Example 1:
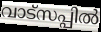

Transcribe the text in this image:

വാട്സപ്പിൽ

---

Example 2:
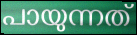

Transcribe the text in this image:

പായുന്നത്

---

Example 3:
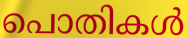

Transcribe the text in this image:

പൊതികൾ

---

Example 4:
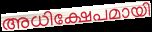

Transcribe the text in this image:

അധിക്ഷേപമായി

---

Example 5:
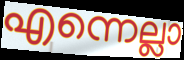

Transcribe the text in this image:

എന്നെല്ലാ